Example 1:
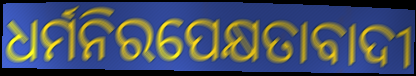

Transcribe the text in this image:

ଧର୍ମନିରପେକ୍ଷତାବାଦୀ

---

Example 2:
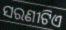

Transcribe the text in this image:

ସରଣୀଟିଏ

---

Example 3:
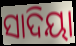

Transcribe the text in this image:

ସାଦିୟା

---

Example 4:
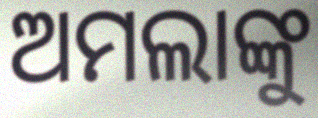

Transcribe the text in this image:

ଅମଲାଙ୍କୁ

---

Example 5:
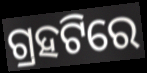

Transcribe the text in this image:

ଗ୍ରହଟିରେ